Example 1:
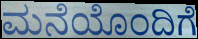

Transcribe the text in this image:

ಮನೆಯೊಂದಿಗೆ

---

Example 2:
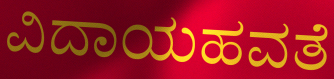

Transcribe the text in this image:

ವಿದಾಯಹವತೆ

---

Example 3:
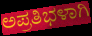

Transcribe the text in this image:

ಅಪ್ರತಿಭಳಾಗಿ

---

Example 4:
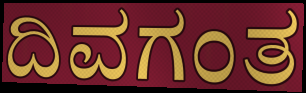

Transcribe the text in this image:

ದಿವಗಂತ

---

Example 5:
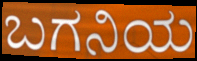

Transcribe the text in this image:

ಬಗನಿಯ